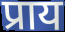
प्राय